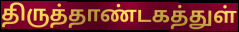
திருத்தாண்டகத்துள்